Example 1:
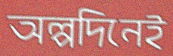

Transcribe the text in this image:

অল্পদিনেই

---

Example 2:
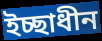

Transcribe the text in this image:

ইচ্ছাধীন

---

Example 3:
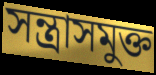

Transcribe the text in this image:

সন্ত্রাসমুক্ত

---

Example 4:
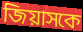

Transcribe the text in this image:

জিয়াসকে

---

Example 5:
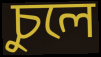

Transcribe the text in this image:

চুলে